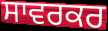
ਸਾਵਰਕਰ